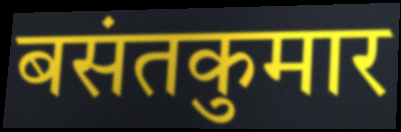
बसंतकुमार